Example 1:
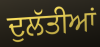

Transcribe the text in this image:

ਦੁਲੱਤੀਆਂ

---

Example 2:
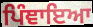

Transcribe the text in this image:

ਪਿੰਞਾਇਆ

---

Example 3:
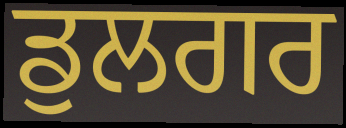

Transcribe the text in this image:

ਡੁਲਗਰ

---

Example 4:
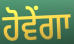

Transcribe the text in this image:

ਹੋਵੇਂਗਾ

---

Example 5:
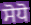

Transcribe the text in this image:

ਸੋਧੋ